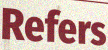
Refers